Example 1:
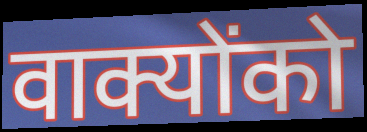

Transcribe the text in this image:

वाक्योंको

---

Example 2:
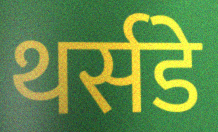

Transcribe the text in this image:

थर्सडे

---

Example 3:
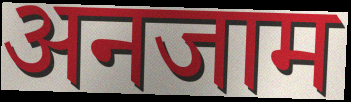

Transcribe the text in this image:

अनजाम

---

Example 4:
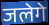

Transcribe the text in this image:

जलेगे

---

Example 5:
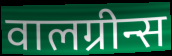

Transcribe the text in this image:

वालग्रीन्स